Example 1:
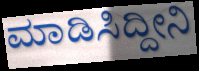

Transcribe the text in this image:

ಮಾಡಿಸಿದ್ದೀನಿ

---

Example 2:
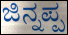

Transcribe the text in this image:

ಜಿನ್ನಪ್ಪ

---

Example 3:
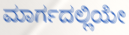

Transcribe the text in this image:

ಮಾರ್ಗದಲ್ಲಿಯೇ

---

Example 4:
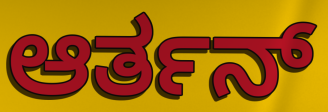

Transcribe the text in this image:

ಆರ್ತನ್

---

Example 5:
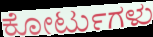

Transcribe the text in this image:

ಕೋರ್ಟುಗಳು